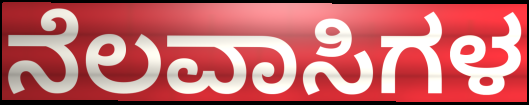
ನೆಲವಾಸಿಗಳ